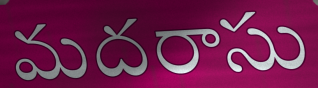
మదరాసు